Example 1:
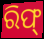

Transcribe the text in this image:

ରିଫ୍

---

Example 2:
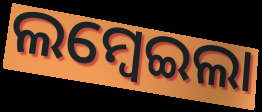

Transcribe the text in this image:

ଲମ୍ବେଇଲା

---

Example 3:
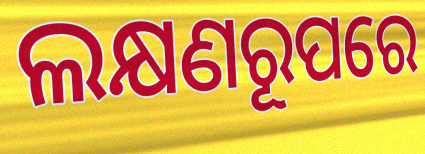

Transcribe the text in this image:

ଲକ୍ଷଣରୂପରେ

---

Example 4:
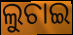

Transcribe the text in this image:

ଲୁଚାଇ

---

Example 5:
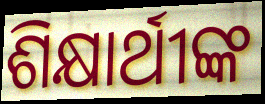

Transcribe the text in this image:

ଶିକ୍ଷାର୍ଥୀଙ୍କ